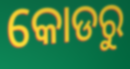
କୋଡରୁ